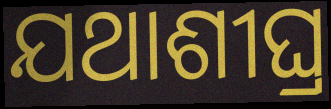
ଯଥାଶୀଘ୍ର